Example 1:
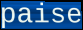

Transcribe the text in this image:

paise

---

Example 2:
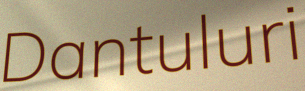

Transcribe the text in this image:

Dantuluri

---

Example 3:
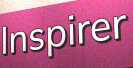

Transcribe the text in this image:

Inspirer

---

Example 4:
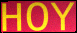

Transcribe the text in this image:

HOY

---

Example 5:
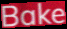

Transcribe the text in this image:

Bake